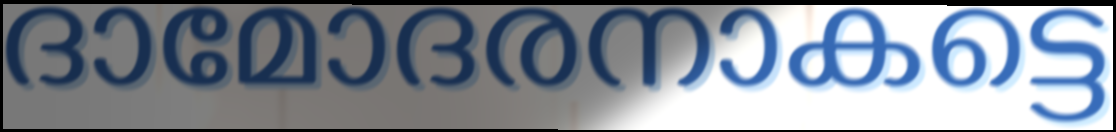
ദാമോദരനാകട്ടെ